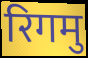
रिगमु